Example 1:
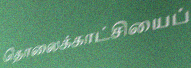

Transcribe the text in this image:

தொலைக்காட்சியைப்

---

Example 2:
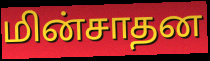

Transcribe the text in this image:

மின்சாதன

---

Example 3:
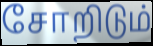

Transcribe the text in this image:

சோறிடும்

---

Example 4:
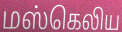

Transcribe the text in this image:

மஸ்கெலிய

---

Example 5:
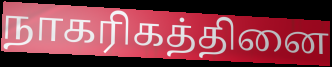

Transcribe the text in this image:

நாகரிகத்தினை